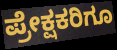
ಪ್ರೇಕ್ಷಕರಿಗೂ